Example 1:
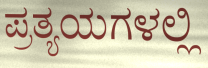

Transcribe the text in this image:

ಪ್ರತ್ಯಯಗಳಲ್ಲಿ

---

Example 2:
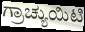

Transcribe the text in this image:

ಗ್ರಾಚ್ಯುಯಿಟಿ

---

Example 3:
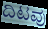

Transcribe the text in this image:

ದಿಟವು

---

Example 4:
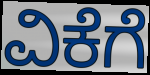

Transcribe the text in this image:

ವಿಕೆಗೆ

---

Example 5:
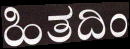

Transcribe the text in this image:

ಹಿತದಿಂ